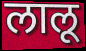
लालू